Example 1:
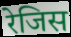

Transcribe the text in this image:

रेजिस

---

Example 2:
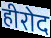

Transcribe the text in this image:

हीरोद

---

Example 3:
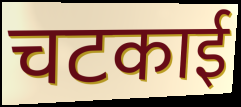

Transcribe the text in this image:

चटकाई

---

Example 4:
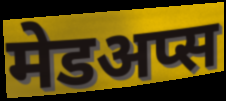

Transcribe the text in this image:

मेडअप्स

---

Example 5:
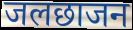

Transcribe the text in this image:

जलछाजन